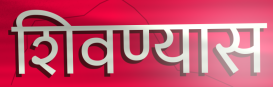
शिवण्यास